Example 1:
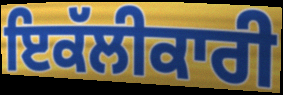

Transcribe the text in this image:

ਇਕੱਲੀਕਾਰੀ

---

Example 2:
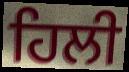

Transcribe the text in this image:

ਹਿਲੀ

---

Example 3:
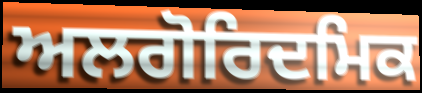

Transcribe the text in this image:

ਅਲਗੋਰਿਦਮਿਕ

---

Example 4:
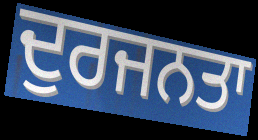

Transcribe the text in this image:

ਦੁਰਜਨਤਾ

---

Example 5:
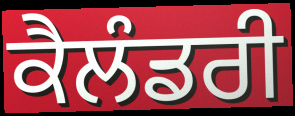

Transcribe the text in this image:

ਕੈਲੰਡਰੀ